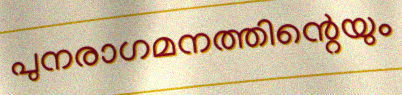
പുനരാഗമനത്തിന്റെയും